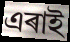
এৰাই